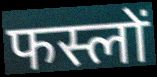
फस्लों